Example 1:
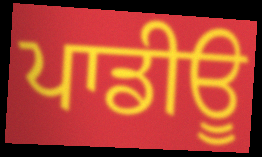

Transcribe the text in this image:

ਪਾਡੀਊ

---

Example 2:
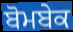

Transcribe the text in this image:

ਬੋਮਬੇਕ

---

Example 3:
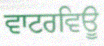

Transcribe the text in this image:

ਵਾਟਰਵਿਊ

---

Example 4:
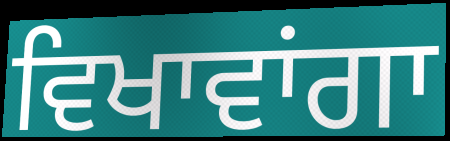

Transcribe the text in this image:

ਵਿਖਾਵਾਂਗਾ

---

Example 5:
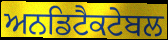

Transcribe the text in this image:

ਅਨਡਿਟੈਕਟੇਬਲ